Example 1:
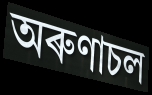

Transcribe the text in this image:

অৰুণাচল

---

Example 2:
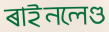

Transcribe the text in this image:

ৰাইনলেণ্ড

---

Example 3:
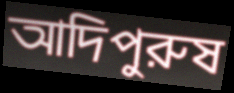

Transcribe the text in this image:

আদিপুৰুষ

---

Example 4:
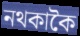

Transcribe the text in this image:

নথকাকৈ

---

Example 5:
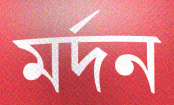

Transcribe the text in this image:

মৰ্দন